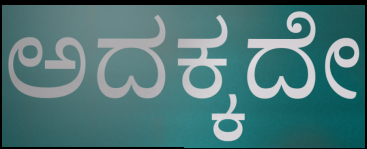
ಅದಕ್ಕದೇ